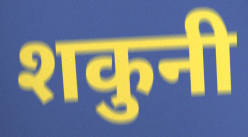
शकुनी